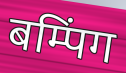
बम्पिंग